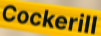
Cockerill